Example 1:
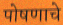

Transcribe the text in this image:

पोषणाचे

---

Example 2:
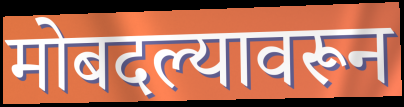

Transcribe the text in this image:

मोबदल्यावरून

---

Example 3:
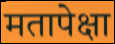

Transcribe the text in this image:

मतापेक्षा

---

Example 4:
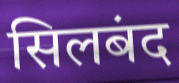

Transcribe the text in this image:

सिलबंद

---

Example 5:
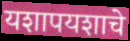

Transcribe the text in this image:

यशापयशाचे